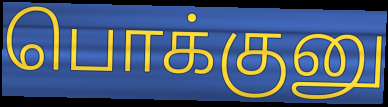
பொக்குனு